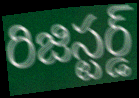
రిజిస్టర్డ్